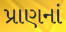
પ્રાણનાં